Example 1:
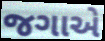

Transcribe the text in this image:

જગાએ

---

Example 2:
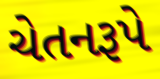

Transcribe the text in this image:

ચેતનરૂપે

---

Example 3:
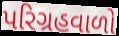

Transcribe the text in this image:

પરિગ્રહવાળો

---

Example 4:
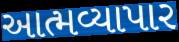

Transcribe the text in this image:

આત્મવ્યાપાર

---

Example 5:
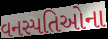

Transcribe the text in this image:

વનસ્પતિઓના